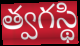
త్వగస్థి